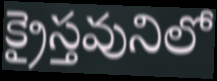
క్రైస్తవునిలో